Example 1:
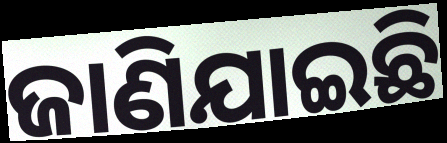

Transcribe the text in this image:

ଜାଣିଯାଇଛି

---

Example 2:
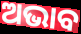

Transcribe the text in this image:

ଅଭାବ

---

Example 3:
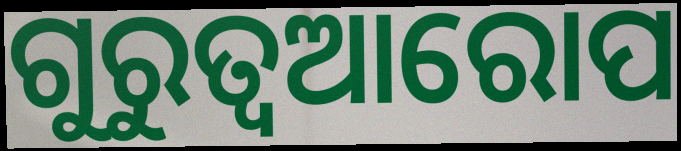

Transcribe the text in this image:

ଗୁରୁତ୍ଵଆରୋପ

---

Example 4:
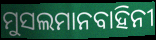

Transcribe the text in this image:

ମୁସଲମାନବାହିନୀ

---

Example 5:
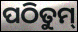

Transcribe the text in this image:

ପଠିତୁମ୍